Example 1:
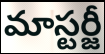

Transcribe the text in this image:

మాస్టర్జీ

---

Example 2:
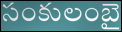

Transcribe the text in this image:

సంకులంబై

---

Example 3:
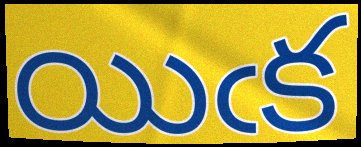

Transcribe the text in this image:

యిఁక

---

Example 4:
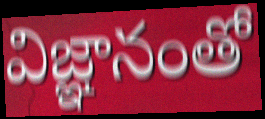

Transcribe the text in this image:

విజ్ఞానంతో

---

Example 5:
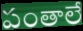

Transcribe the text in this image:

పంతాలే